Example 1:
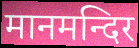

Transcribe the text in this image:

मानमन्दिर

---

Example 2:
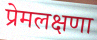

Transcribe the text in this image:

प्रेमलक्षणा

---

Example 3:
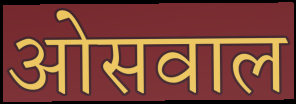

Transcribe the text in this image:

ओसवाल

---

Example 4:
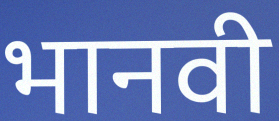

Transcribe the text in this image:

भानवी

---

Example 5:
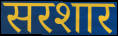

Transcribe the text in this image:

सरशार